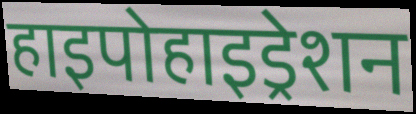
हाइपोहाइड्रेशन